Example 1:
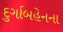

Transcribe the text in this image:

દુર્ગાબહેનના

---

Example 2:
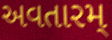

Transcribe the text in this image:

અવતારમ્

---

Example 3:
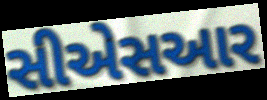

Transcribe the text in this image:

સીએસઆર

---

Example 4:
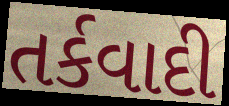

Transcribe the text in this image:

તર્કવાદી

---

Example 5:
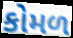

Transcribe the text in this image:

કોમળ